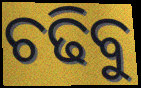
ଚଢିବୁ